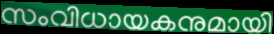
സംവിധായകനുമായി